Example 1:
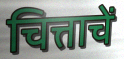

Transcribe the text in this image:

चित्ताचें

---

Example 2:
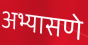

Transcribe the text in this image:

अभ्यासणे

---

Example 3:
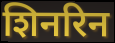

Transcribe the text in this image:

शिनरिन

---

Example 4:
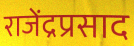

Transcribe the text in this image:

राजेंद्रप्रसाद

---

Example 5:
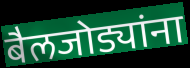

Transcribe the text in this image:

बैलजोड्यांना